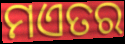
ମଏତର